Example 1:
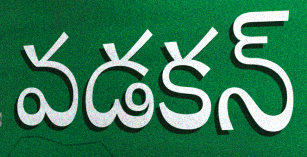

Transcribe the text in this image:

వడకన్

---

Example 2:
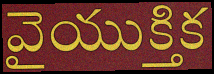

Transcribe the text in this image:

వైయుక్తిక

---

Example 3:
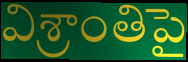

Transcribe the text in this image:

విశ్రాంతిపై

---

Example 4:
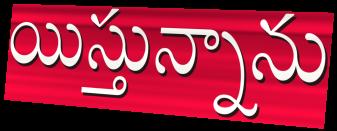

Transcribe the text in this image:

యిస్తున్నాను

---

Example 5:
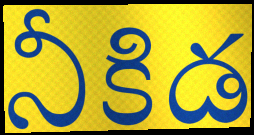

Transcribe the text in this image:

నీకిడ